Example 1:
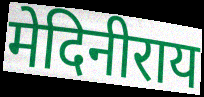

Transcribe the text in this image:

मेदिनीराय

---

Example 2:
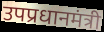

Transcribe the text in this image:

उपप्रधानमंत्री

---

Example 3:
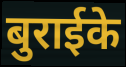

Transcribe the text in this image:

बुराईके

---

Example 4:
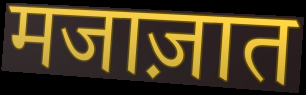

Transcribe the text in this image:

मजाज़ात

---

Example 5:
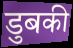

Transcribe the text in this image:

डुबकी